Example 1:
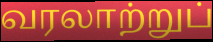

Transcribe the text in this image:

வரலாற்றுப்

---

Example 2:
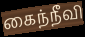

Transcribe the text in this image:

கைந்நீவி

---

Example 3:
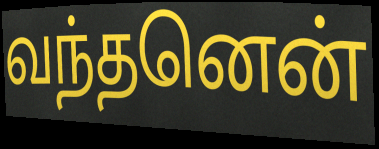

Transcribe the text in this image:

வந்தனென்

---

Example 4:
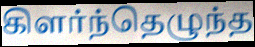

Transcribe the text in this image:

கிளர்ந்தெழுந்த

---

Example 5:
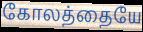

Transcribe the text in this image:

கோலத்தையே